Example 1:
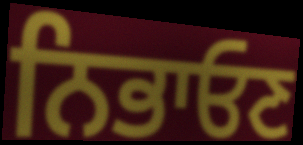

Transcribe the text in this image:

ਨਿਭਾਓਣ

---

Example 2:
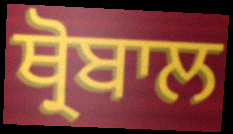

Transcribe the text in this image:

ਥ੍ਰੋਬਾਲ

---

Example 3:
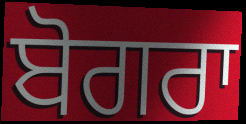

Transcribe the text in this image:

ਬੋਗਰਾ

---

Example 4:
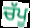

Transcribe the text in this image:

ਚੱਪੂ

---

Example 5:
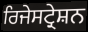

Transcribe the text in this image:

ਰਿਜੇਸਟ੍ਰੇਸ਼ਨ